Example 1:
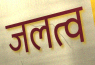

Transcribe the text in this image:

जलत्व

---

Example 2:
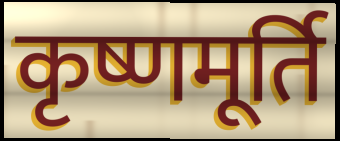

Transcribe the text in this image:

कृष्णमूर्ति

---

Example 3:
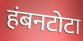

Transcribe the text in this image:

हंबनटोटा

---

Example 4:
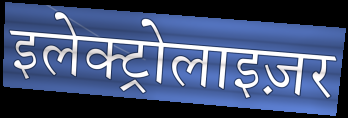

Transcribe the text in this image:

इलेक्ट्रोलाइज़र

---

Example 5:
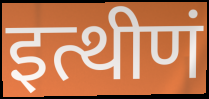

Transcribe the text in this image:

इत्थीणं